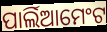
ପାର୍ଲିଆମେଂଟ